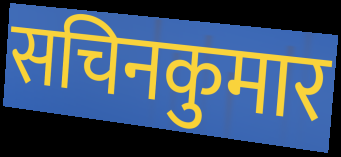
सचिनकुमार